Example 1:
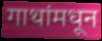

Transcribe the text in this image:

गाथांमधून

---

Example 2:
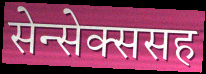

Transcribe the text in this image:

सेन्सेक्ससह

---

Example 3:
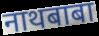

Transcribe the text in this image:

नाथबाबा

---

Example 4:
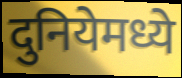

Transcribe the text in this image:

दुनियेमध्ये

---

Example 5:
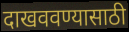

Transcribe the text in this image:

दाखववण्यासाठी